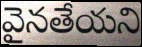
వైనతేయని